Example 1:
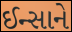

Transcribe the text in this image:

ઈન્સાને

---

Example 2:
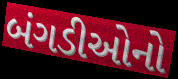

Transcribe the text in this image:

બંગડીઓનો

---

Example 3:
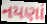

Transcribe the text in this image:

નયણાં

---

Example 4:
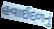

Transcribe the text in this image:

હવાઈદળનું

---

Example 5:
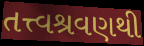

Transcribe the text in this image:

તત્ત્વશ્રવણથી